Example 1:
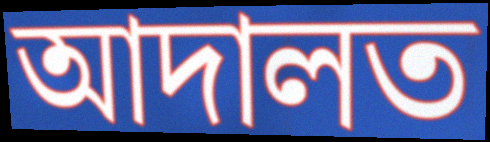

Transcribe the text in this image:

আদালত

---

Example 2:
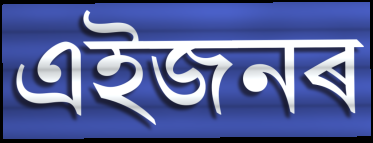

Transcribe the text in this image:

এইজনৰ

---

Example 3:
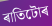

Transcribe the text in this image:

ৰাতিটোৰ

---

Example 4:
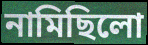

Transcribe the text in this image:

নামিছিলো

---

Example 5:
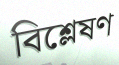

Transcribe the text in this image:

বিশ্লেষণ